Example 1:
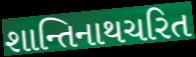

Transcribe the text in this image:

શાન્તિનાથચરિત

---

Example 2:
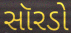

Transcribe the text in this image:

સૉરડો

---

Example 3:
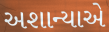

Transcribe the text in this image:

અશાન્યાએ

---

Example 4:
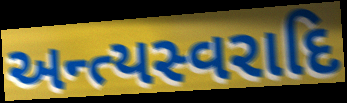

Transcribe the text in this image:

અન્ત્યસ્વરાદિ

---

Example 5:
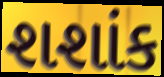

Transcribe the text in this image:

શશાંક